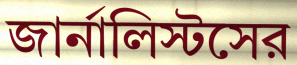
জার্নালিস্টসের